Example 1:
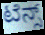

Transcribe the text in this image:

ಟೆನ್ಸ್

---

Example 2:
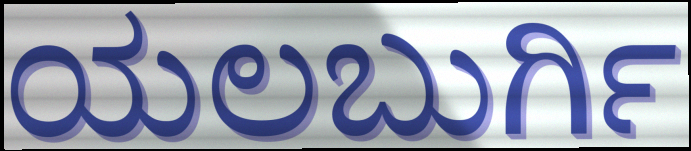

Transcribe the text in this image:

ಯಲಬುರ್ಗಿ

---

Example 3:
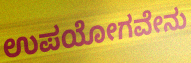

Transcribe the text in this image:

ಉಪಯೋಗವೇನು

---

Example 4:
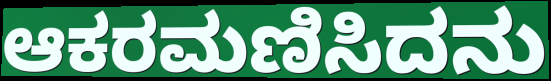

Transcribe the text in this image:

ಆಕರಮಣಿಸಿದನು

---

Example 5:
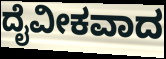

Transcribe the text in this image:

ದೈವೀಕವಾದ